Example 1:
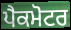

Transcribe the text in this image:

ਪੈਕਮੋਟਰ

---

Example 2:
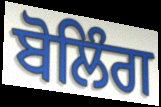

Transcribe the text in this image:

ਬੋਲਿੰਗ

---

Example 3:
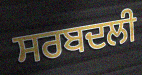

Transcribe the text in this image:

ਸਰਬਦਲੀ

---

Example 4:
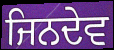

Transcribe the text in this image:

ਜਿਨਦੇਵ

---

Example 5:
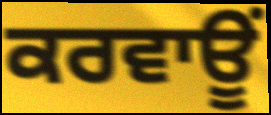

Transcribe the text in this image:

ਕਰਵਾਊਂ